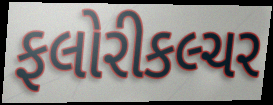
ફલોરીકલ્ચર